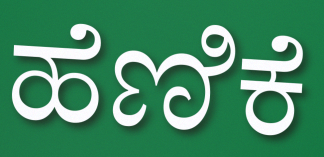
ಹೆಣಿಕೆ